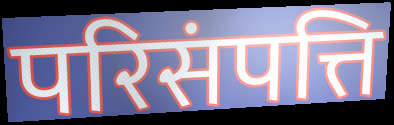
परिसंपत्ति